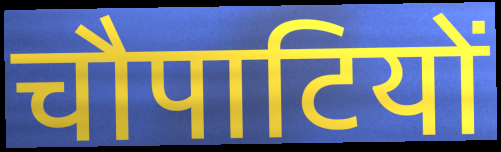
चौपाटियों